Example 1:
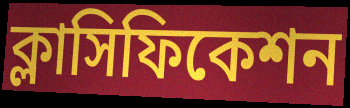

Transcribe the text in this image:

ক্লাসিফিকেশন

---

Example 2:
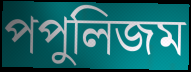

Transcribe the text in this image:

পপুলিজম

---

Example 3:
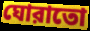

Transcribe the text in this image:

ঘোরাতো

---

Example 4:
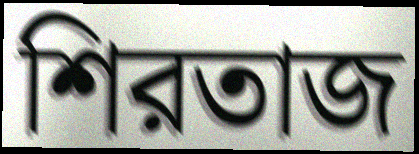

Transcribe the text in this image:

শিরতাজ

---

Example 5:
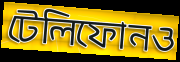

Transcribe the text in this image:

টেলিফোনও